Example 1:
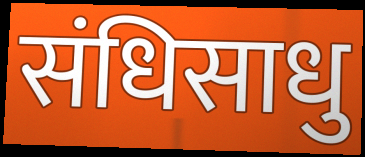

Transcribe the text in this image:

संधिसाधु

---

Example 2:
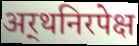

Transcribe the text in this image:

अर्थनिरपेक्ष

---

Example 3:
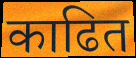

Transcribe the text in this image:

काढित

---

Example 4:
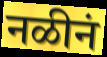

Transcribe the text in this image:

नळीनं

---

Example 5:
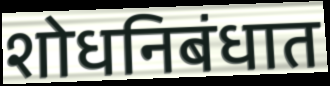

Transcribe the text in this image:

शोधनिबंधात